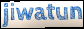
jiwatun